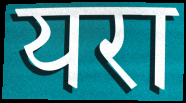
यरा